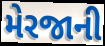
મેરજાની